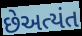
છેઅત્યંત